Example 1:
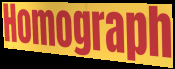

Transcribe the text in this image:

Homograph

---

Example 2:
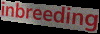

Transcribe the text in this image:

inbreeding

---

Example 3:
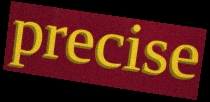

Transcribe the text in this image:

precise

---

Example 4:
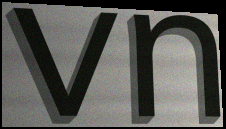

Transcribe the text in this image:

vn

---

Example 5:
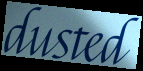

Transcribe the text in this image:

dusted